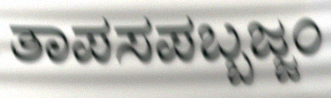
ತಾಪಸಪಬ್ಬಜ್ಜಂ